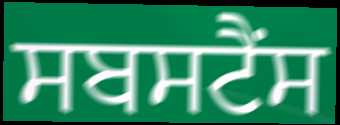
ਸਬਸਟੈਂਸ